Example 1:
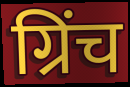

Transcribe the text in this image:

ग्रिंच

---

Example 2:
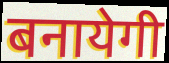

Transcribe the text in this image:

बनायेगी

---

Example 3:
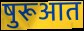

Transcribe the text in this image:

षुरूआत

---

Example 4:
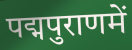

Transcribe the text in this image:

पद्मपुराणमें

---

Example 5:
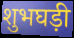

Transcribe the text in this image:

शुभघड़ी